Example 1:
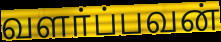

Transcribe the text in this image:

வளர்ப்பவன்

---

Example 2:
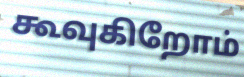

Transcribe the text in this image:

கூவுகிறோம்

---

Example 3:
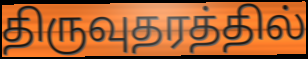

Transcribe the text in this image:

திருவுதரத்தில்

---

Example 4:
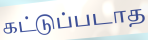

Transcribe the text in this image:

கட்டுப்படாத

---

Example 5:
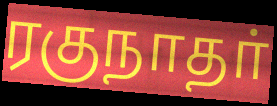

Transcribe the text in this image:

ரகுநாதர்